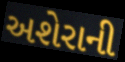
અશેરાની